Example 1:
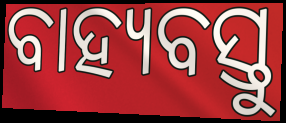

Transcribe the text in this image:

ବାହ୍ୟବସ୍ତୁ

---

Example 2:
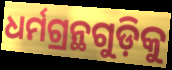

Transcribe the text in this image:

ଧର୍ମଗ୍ରନ୍ଥଗୁଡ଼ିକୁ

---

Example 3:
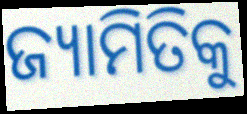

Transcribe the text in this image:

ଜ୍ୟାମିତିକୁ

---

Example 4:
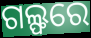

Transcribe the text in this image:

ଗଲ୍ଫରେ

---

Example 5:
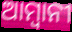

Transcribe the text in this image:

ଆମ୍ବାନୀ